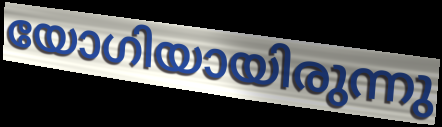
യോഗിയായിരുന്നു